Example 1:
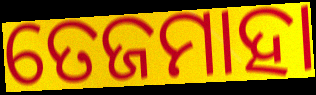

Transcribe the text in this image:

ତେଜମାହା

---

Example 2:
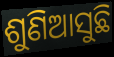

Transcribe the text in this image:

ଶୁଣିଆସୁଛି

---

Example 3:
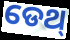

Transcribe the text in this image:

ଡେଥ୍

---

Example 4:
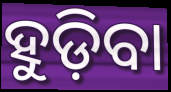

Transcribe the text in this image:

ହୁଡ଼ିବା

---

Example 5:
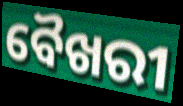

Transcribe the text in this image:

ବୈଖରୀ